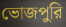
ভোজপুরি